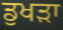
ਡੁਖੜਾ